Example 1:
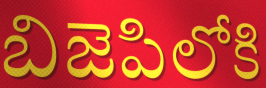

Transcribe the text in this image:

బిజెపిలోకి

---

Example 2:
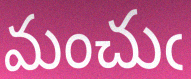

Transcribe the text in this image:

మంచుఁ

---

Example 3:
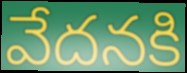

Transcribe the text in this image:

వేదనకి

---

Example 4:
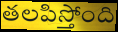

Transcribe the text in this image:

తలపిస్తోంది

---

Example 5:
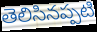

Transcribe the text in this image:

తెలిసినప్పటి